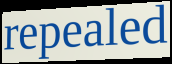
repealed